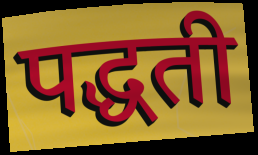
पद्धती